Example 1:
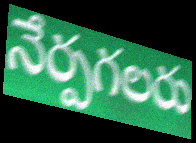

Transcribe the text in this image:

నేర్పగలరు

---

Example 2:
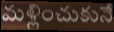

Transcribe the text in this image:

మళ్లించుకునే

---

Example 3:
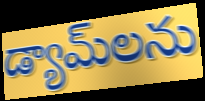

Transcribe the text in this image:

డ్యామ్‌లను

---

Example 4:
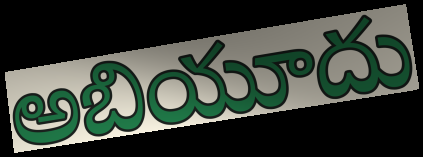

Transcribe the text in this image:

అబియూదు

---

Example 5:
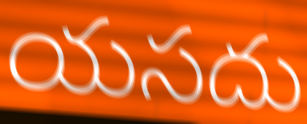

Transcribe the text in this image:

యసదు